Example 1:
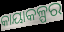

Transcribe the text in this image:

କାୟାକଳ୍ପର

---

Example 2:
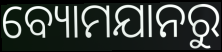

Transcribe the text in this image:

ବ୍ୟୋମଯାନରୁ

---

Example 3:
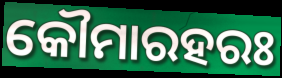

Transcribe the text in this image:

କୌମାରହରଃ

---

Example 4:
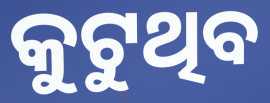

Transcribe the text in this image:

କୁଟୁଥିବ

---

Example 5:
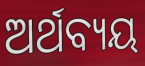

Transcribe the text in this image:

ଅର୍ଥବ୍ୟୟ